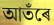
আতঁৰে